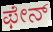
ಫೇನ್